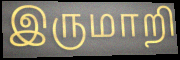
இருமாறி